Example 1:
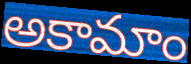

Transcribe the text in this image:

అకామాం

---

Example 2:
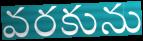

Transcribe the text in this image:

వరకును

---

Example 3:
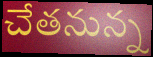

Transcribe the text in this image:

చేతనున్న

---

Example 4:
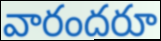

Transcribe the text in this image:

వారందరూ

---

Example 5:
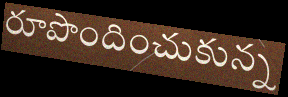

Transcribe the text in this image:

రూపొందించుకున్న